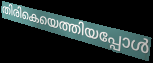
തിരികെയെത്തിയപ്പോൾ